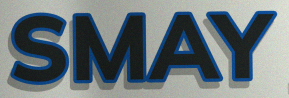
SMAY